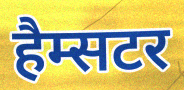
हैम्सटर